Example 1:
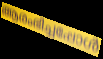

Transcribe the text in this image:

ആരംഭിച്ചപ്പോൾ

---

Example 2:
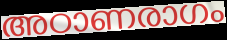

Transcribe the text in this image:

അഠാണരാഗം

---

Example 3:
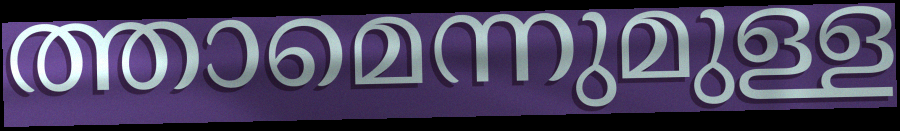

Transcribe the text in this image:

ത്താമെന്നുമുള്ള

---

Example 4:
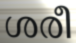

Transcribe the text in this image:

ശരീ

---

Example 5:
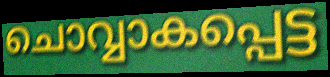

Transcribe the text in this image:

ചൊവ്വാകപ്പെട്ട